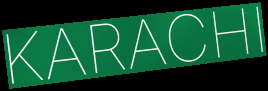
KARACHI